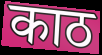
काठ